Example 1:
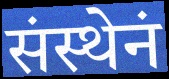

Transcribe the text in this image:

संस्थेनं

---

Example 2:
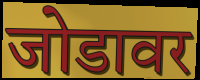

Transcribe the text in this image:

जोडावर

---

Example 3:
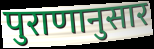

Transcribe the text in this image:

पुराणानुसार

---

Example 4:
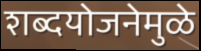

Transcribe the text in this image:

शब्दयोजनेमुळे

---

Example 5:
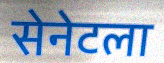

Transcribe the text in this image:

सेनेटला